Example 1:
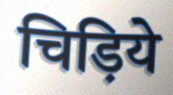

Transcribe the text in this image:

चिड़िये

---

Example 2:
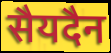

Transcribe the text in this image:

सैयदैन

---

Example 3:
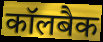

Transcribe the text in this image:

कॉलबैक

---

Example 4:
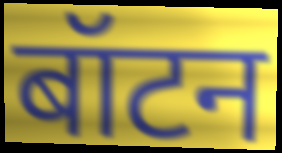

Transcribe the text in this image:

बॉटन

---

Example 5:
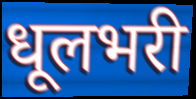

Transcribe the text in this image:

धूलभरी